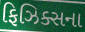
ફિઝિક્સના